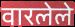
वारलेले